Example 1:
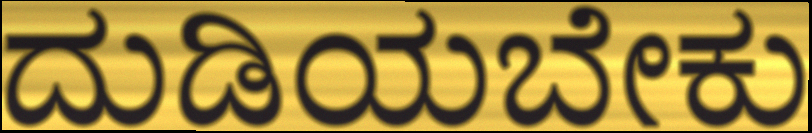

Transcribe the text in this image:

ದುಡಿಯಬೇಕು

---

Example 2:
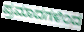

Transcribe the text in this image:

ಪ್ರಮಾದಗಳಿಂದ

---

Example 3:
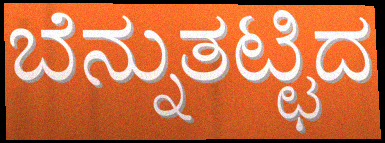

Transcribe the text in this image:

ಬೆನ್ನುತಟ್ಟಿದ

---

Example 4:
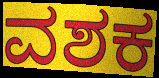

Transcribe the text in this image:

ವಶಕ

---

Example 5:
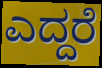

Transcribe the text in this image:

ಎದ್ದರೆ